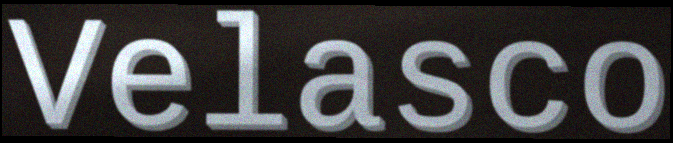
Velasco